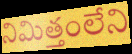
నిమిత్తంలేని